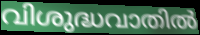
വിശുദ്ധവാതിൽ